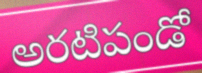
అరటిపండో